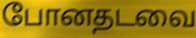
போனதடவை